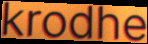
krodhe